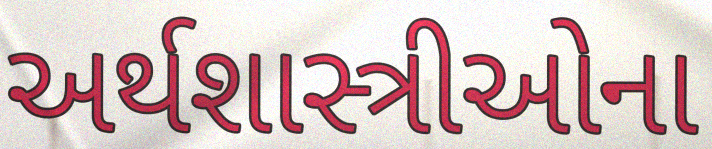
અર્થશાસ્ત્રીઓના